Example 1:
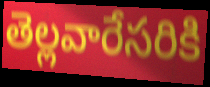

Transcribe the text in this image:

తెల్లవారేసరికి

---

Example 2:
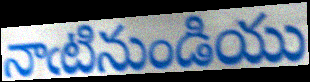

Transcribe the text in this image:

నాఁటినుండియు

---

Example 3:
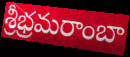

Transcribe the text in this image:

శ్రీభ్రమరాంబా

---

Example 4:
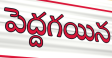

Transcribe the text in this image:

పెద్దగయిన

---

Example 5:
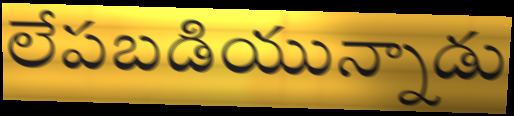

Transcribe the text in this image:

లేపబడియున్నాడు